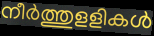
നീർത്തുളളികൾ